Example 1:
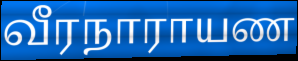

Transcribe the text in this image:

வீரநாராயண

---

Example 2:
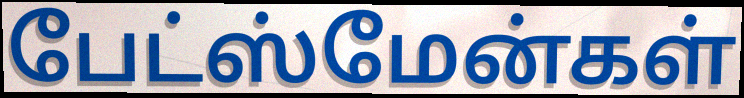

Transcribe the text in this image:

பேட்ஸ்மேன்கள்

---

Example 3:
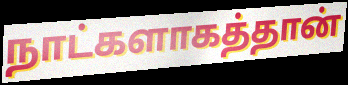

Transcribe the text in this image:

நாட்களாகத்தான்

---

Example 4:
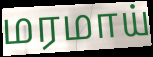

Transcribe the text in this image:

மரமாய்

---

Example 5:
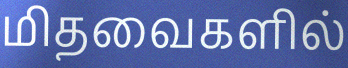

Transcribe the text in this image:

மிதவைகளில்